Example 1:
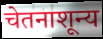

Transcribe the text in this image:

चेतनाशून्य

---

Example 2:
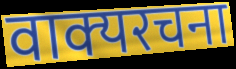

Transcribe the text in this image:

वाक्यरचना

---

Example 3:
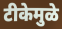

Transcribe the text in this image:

टीकेमुळे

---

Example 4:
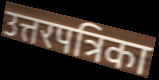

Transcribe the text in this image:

उत्तरपत्रिका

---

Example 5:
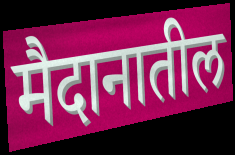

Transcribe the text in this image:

मैदानातील